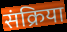
संक्रिया